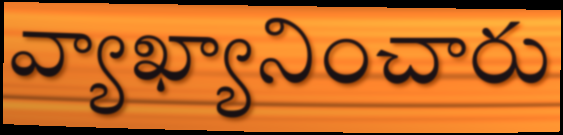
వ్యాఖ్యానించారు